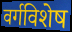
वर्गविशेष